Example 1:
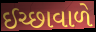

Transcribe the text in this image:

ઈચ્છાવાળે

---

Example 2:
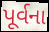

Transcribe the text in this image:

પૂર્વના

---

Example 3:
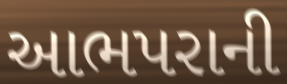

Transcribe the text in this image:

આભપરાની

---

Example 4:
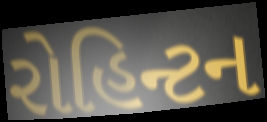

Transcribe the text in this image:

રોહિન્ટન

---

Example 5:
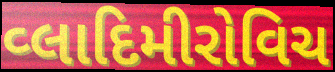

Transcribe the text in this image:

વ્લાદિમીરોવિચ